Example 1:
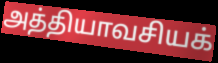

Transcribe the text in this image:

அத்தியாவசியக்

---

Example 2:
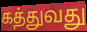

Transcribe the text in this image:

கத்துவது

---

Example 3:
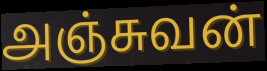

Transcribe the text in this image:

அஞ்சுவன்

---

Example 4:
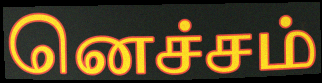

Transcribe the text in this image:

னெச்சம்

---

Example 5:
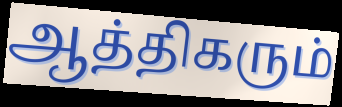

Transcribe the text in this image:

ஆத்திகரும்